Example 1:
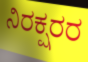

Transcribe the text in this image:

ನಿರಕ್ಷರರ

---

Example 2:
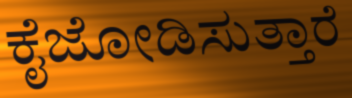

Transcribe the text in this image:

ಕೈಜೋಡಿಸುತ್ತಾರೆ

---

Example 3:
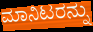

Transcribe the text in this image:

ಮಾನಿಟರನ್ನು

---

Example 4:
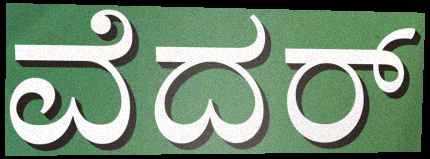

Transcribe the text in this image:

ವೆದರ್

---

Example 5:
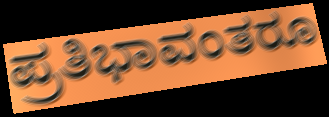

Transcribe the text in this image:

ಪ್ರತಿಭಾವಂತರೂ